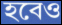
হবেও